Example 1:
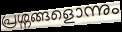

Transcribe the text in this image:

പ്രശ്നങ്ങളൊന്നും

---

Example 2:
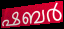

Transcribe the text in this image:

ഷബർ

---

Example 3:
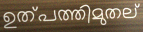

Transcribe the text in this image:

ഉത്പത്തിമുതല്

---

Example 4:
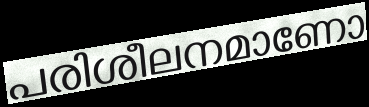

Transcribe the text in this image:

പരിശീലനമാണോ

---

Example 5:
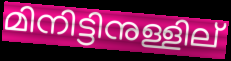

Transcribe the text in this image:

മിനിട്ടിനുള്ളില്